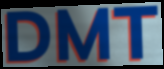
DMT